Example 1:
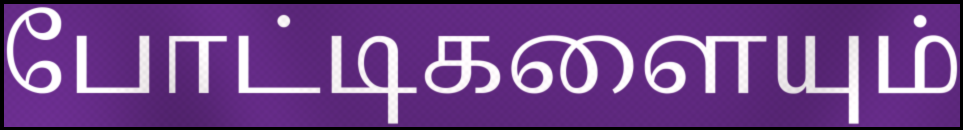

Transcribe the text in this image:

போட்டிகளையும்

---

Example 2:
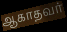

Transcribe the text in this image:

ஆகாதவர்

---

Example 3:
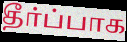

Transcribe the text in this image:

தீர்ப்பாக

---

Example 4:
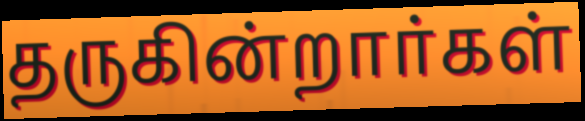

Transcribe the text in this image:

தருகின்றார்கள்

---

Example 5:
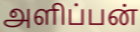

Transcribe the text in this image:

அளிப்பன்